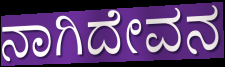
ನಾಗಿದೇವನ